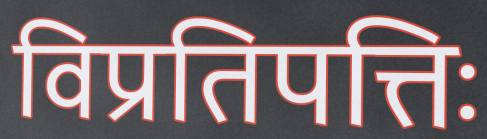
विप्रतिपत्तिः